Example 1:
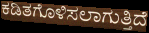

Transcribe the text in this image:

ಕಡಿತಗೊಳಿಸಲಾಗುತ್ತಿದೆ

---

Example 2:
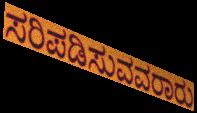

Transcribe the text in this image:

ಸರಿಪಡಿಸುವವರಾರು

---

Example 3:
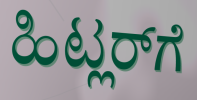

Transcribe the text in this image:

ಹಿಟ್ಲರ್‌ಗೆ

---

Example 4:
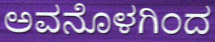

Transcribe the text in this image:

ಅವನೊಳಗಿಂದ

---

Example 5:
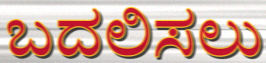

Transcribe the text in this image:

ಬದಲಿಸಲು